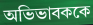
অভিভাবককে